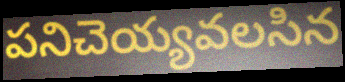
పనిచెయ్యవలసిన